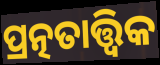
ପ୍ରତ୍ନତାତ୍ତ୍ଵିକ